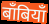
बाँबियाँ